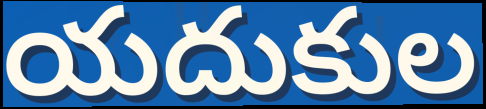
యదుకుల